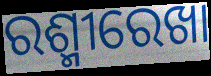
ରଶ୍ମୀରେଖା